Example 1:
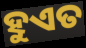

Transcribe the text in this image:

ହୁଏତ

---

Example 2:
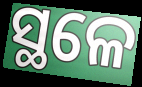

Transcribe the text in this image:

ସ୍ଥଳେ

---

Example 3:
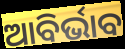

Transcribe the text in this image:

ଆବିର୍ଭାବ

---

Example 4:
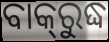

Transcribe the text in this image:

ବାକ୍‌ରୁଦ୍ଧ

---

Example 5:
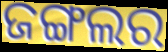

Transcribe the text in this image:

ଜଙ୍ଗଲର